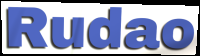
Rudao